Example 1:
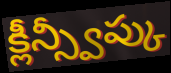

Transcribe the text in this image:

క్లీన్స్వీప్కు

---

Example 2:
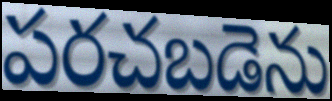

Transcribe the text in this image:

పరచబడెను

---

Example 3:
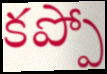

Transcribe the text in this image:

కప్పో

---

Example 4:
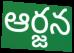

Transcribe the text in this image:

ఆర్జన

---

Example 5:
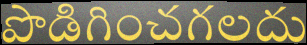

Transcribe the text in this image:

పొడిగించగలదు